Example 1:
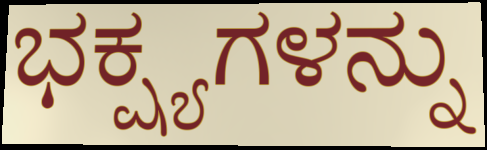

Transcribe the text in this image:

ಭಕ್ಷ್ಯಗಳನ್ನು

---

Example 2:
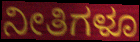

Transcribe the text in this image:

ನೀತಿಗಳೂ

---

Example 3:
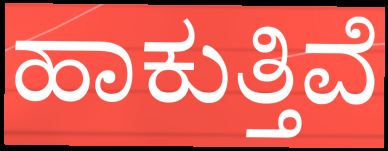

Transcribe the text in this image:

ಹಾಕುತ್ತಿವೆ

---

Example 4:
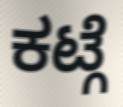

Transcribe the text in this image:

ಕಟ್ಗೆ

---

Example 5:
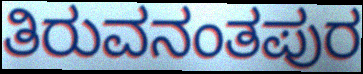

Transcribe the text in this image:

ತಿರುವನಂತಪುರ